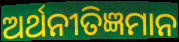
ଅର୍ଥନୀତିଜ୍ଞମାନ